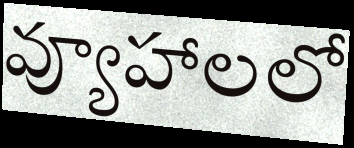
వ్యూహాలలో